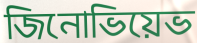
জিনোভিয়েভ